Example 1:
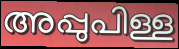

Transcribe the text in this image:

അപ്പുപിള്ള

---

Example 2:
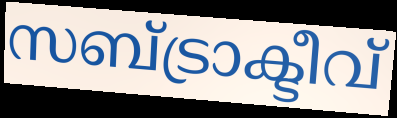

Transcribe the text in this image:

സബ്ട്രാക്ടീവ്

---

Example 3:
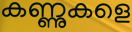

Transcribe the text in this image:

കണ്ണുകളെ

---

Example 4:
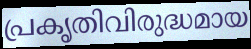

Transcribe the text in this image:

പ്രകൃതിവിരുദ്ധമായ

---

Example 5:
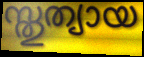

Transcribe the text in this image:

സ്തുത്യായ